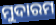
ମୁଦାରମ